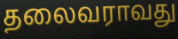
தலைவராவது